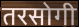
तरसोगी